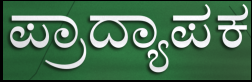
ಪ್ರಾದ್ಯಾಪಕ